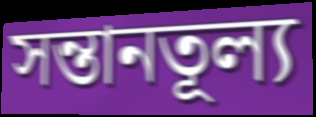
সন্তানতূল্য